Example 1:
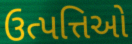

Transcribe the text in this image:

ઉત્પત્તિઓ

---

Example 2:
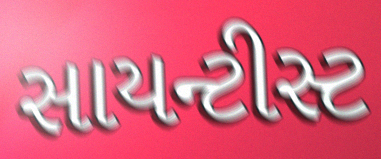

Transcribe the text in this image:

સાયન્ટીસ્ટ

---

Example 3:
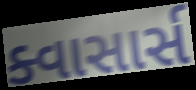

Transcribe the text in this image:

ક્વાસાર્સ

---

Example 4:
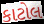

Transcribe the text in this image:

કાટોલ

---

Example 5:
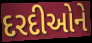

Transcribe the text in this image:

દરદીઓને